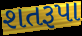
શતરૂપા